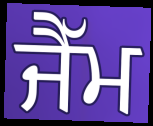
ਜੈੱਮ